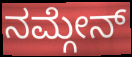
ನಮ್ಗೇನ್